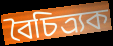
বৈচিত্ৰ্যক